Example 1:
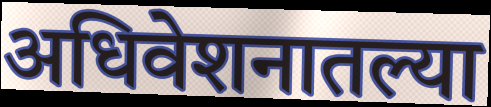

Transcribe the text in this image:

अधिवेशनातल्या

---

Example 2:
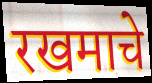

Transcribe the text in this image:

रखमाचे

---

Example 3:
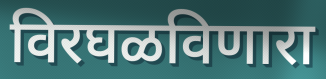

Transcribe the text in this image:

विरघळविणारा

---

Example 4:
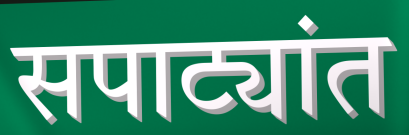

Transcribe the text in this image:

सपाट्यांत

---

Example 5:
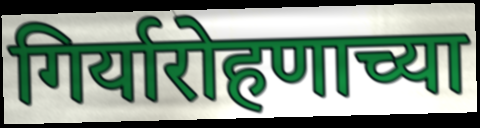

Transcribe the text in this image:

गिर्यारोहणाच्या